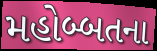
મહોબ્બતના